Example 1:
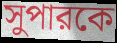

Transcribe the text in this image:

সুপারকে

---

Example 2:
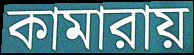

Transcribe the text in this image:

কামারায়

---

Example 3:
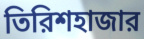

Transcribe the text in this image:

তিরিশহাজার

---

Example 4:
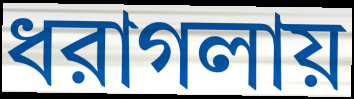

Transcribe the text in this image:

ধরাগলায়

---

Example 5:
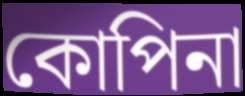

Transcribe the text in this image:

কোপিনা